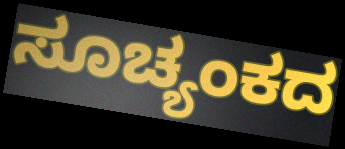
ಸೂಚ್ಯಂಕದ